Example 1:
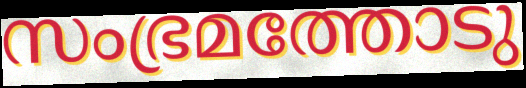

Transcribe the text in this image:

സംഭ്രമത്തോടു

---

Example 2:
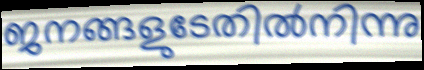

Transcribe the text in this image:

ജനങ്ങളുടേതിൽനിന്നു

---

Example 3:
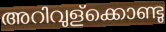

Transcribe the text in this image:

അറിവുള്ക്കൊണ്ടു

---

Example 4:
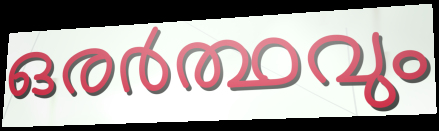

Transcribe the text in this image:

ഒരർത്ഥവും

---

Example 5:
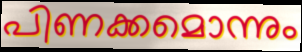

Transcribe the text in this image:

പിണക്കമൊന്നും